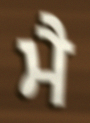
ਮੈ